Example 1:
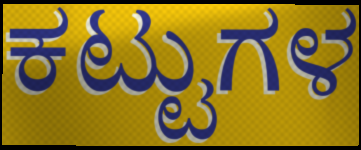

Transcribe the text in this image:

ಕಟ್ಟುಗಳ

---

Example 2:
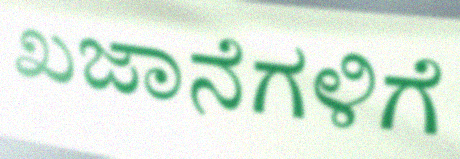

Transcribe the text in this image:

ಖಜಾನೆಗಳಿಗೆ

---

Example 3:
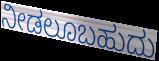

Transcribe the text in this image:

ನೀಡಲೂಬಹುದು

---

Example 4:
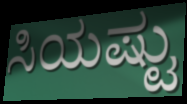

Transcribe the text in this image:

ಸಿಯಷ್ಟು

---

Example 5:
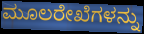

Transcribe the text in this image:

ಮೂಲರೇಖೆಗಳನ್ನು